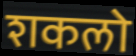
शकलो